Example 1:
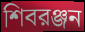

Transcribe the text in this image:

শিবরঞ্জন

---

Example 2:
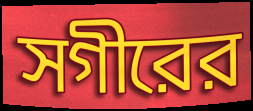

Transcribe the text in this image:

সগীরের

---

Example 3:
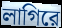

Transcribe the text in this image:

লাগিরে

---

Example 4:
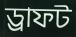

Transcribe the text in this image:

ড্রাফট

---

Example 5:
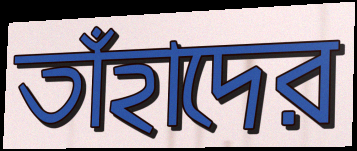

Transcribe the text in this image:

তাঁহাদের